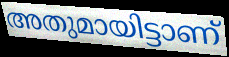
അതുമായിട്ടാണ്